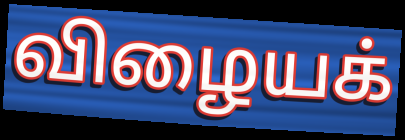
விழையக்